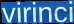
virinci